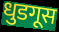
धुडगूस